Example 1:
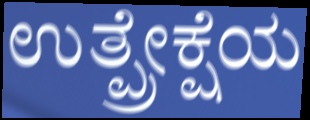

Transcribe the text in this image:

ಉತ್ಪ್ರೇಕ್ಷೆಯ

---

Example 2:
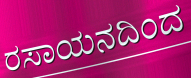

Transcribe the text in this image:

ರಸಾಯನದಿಂದ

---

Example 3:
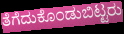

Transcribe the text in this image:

ತೆಗೆದುಕೊಂಡುಬಿಟ್ಟರು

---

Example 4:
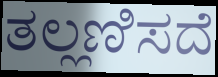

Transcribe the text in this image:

ತಲ್ಲಣಿಸದೆ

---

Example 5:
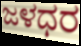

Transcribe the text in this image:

ಜಳಧರ